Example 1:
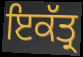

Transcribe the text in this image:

ਇਕੱਤ੍ਰ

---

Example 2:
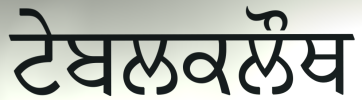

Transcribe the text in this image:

ਟੇਬਲਕਲੌਥ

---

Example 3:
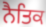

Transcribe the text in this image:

ਨੈਤਿਕ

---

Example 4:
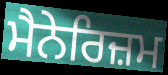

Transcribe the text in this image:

ਮੈਨੇਰਿਜ਼ਮ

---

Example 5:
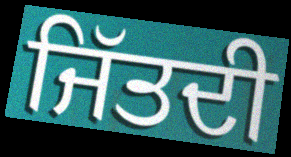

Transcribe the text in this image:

ਜਿੱਤਦੀ